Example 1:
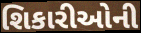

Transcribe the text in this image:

શિકારીઓની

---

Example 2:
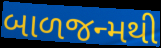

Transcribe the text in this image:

બાળજન્મથી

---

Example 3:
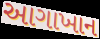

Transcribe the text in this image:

આગાખાન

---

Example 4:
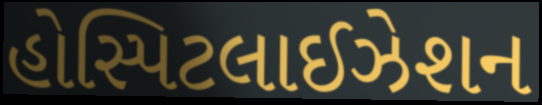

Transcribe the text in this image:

હોસ્પિટલાઈઝેશન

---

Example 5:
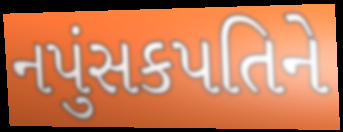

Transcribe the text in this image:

નપુંસકપતિને